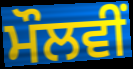
ਮੌਲਵੀਂ